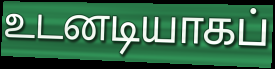
உடனடியாகப்